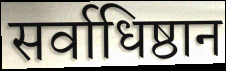
सर्वाधिष्ठान